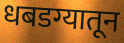
धबडग्यातून